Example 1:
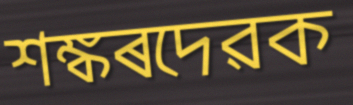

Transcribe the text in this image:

শঙ্কৰদেৱক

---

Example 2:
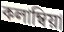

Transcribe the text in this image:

কলাম্বিয়া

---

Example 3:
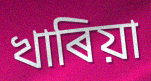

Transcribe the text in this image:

খাৰিয়া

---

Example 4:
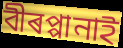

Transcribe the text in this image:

বীৰপ্পানাই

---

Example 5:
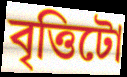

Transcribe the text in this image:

বৃত্তিটো